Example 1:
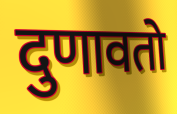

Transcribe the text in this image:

दुणावतो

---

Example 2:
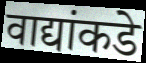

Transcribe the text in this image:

वाद्यांकडे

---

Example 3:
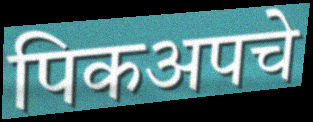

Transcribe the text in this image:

पिकअपचे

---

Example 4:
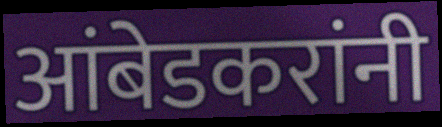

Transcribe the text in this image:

आंबेडकरांनी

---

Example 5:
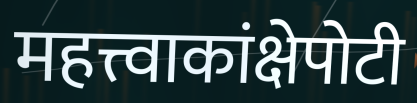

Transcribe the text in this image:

महत्त्वाकांक्षेपोटी